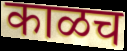
काळच